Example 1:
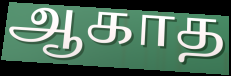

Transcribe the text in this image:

ஆகாத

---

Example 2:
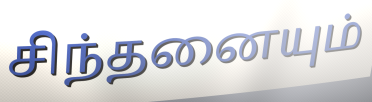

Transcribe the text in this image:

சிந்தனையும்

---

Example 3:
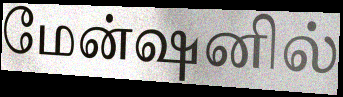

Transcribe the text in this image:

மேன்ஷனில்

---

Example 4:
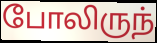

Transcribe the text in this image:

போலிருந்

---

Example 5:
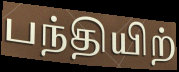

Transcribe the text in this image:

பந்தியிற்